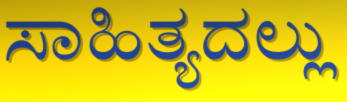
ಸಾಹಿತ್ಯದಲ್ಲು